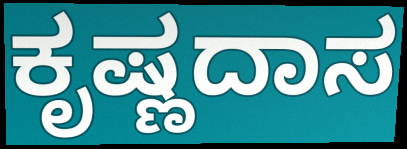
ಕೃಷ್ಣದಾಸ